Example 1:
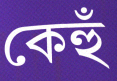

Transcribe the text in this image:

কেহুঁ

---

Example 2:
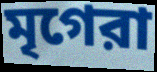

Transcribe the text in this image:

মৃগেরা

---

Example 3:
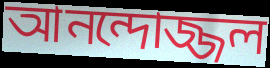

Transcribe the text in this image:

আনন্দোজ্জল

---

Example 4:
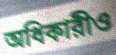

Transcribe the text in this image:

অধিকারীও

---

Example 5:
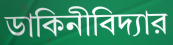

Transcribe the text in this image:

ডাকিনীবিদ্যার